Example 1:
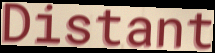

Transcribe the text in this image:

Distant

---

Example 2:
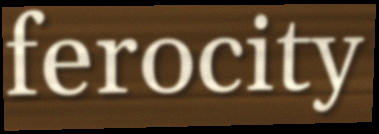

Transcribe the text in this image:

ferocity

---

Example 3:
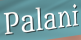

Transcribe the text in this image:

Palani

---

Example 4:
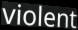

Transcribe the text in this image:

violent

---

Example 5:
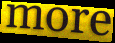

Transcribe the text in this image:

more